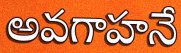
అవగాహనే